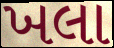
ખલા